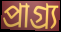
প্রাগ্র্য